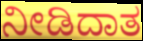
ನೀಡಿದಾತ